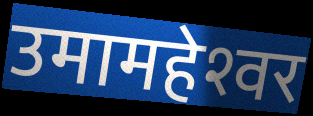
उमामहेश्वर